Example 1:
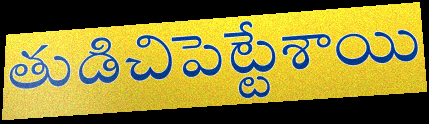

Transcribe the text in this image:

తుడిచిపెట్టేశాయి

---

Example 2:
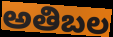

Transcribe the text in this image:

అతిబల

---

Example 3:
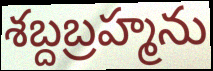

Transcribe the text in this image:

శబ్దబ్రహ్మను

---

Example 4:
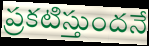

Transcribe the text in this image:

ప్రకటిస్తుందనే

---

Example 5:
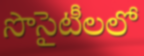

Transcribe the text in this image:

సొసైటీలలో